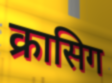
क्रासिग